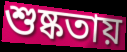
শুষ্কতায়